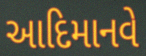
આદિમાનવે